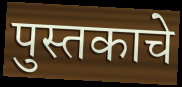
पुस्तकाचे